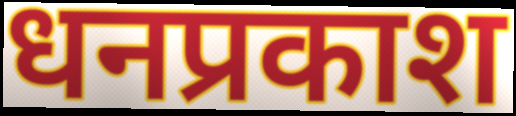
धनप्रकाश